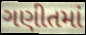
ગણીતમાં